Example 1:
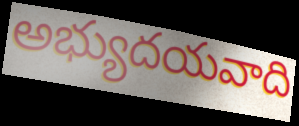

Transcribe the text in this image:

అభ్యుదయవాది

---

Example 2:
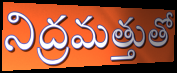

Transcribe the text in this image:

నిద్రమత్తుతో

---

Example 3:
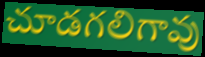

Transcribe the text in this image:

చూడగలిగావు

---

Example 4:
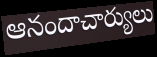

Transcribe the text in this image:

ఆనందాచార్యులు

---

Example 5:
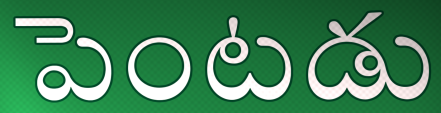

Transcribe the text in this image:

పెంటడు